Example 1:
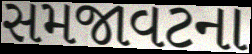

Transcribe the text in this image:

સમજાવટના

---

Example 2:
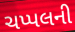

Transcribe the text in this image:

ચપ્પલની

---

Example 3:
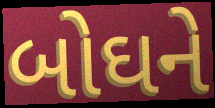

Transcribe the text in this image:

બોઘને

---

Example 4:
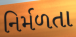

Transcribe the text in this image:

નિર્મળતા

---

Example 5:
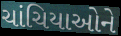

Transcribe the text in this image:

ચાંચિયાઓને